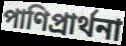
পাণিপ্রার্থনা